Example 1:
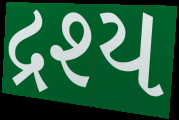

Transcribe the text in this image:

દ્રશ્ય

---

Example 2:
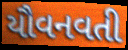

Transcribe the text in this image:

યૌવનવતી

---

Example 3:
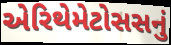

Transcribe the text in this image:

એરિથેમેટોસસનું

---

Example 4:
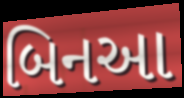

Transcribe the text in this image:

બિનઆ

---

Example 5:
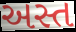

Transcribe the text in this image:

અસ્ત